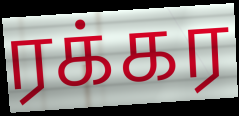
ரக்கர